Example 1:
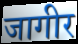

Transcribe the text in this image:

जागीर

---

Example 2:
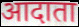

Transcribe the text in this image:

आदाता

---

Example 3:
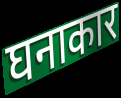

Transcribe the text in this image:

घनाकार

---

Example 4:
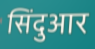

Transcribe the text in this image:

सिंदुआर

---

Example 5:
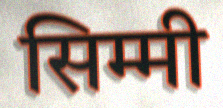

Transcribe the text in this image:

सिम्मी